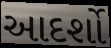
આદર્શો